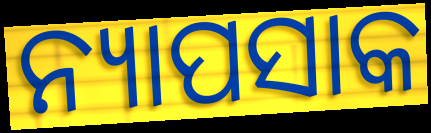
ନ୍ୟାପସାକ